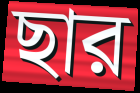
ছার